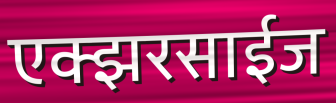
एक्झरसाईज